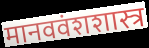
मानववंशशास्त्र